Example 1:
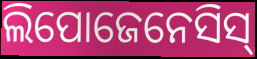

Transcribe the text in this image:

ଲିପୋଜେନେସିସ୍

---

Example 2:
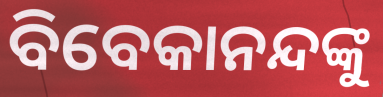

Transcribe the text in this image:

ବିବେକାନନ୍ଦଙ୍କୁ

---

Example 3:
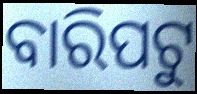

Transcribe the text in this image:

ବାରିପଟୁ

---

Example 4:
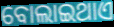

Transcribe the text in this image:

ବୋଲାଇଥାଏ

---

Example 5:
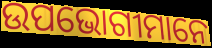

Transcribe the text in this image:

ଉପଭୋଗୀମାନେ